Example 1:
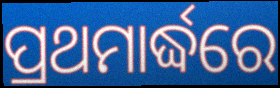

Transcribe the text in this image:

ପ୍ରଥମାର୍ଦ୍ଧରେ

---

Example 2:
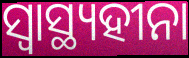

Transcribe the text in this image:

ସ୍ଵାସ୍ଥ୍ୟହୀନା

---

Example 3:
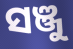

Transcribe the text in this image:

ସଞ୍ଜୁ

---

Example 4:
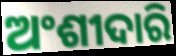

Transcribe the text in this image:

ଅଂଶୀଦାରି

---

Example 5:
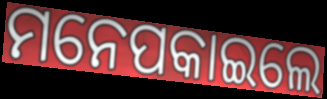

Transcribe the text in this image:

ମନେପକାଇଲେ